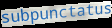
subpunctatus